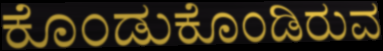
ಕೊಂಡುಕೊಂಡಿರುವ